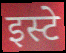
इस्टे